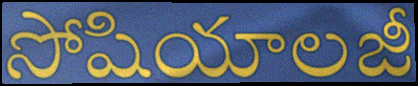
సోషియాలజీ